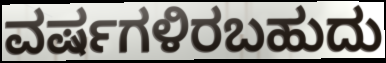
ವರ್ಷಗಳಿರಬಹುದು